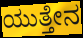
ಯುತ್ತೇನ